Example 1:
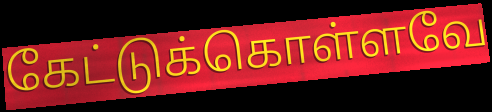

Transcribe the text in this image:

கேட்டுக்கொள்ளவே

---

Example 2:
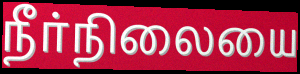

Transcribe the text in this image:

நீர்நிலையை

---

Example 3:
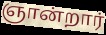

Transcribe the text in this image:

ஞான்றார்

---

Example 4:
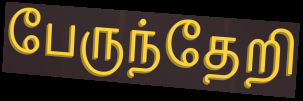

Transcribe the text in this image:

பேருந்தேறி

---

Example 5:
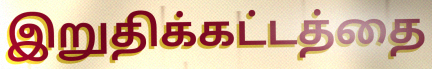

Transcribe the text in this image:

இறுதிக்கட்டத்தை